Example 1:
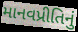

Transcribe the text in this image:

માનવપ્રીતિનું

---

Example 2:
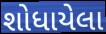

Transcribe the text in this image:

શોધાયેલા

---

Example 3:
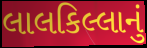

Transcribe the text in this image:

લાલકિલ્લાનું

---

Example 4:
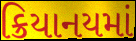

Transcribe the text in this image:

ક્રિયાનયમાં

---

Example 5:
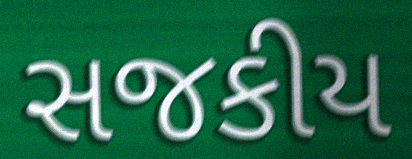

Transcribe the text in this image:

સજકીય